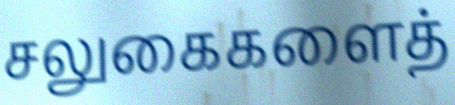
சலுகைகளைத்